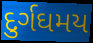
દુર્ગઘમય